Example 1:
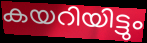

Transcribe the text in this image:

കയറിയിട്ടും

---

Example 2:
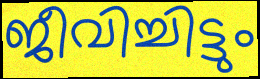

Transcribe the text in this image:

ജീവിച്ചിട്ടും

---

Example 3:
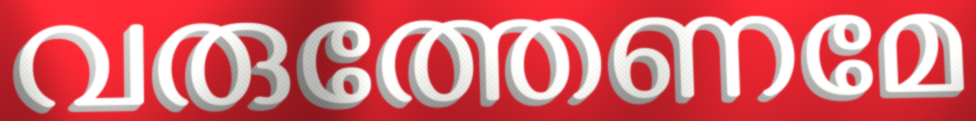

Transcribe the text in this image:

വരുത്തേണമേ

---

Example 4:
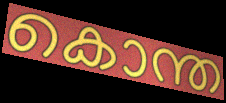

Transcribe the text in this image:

കൊന്ത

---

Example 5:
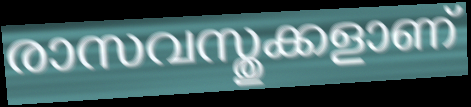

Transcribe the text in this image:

രാസവസ്തുക്കളാണ്